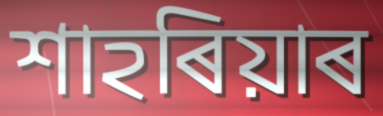
শাহৰিয়াৰ